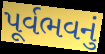
પૂર્વભવનું